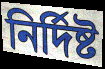
নিৰ্দিষ্ট